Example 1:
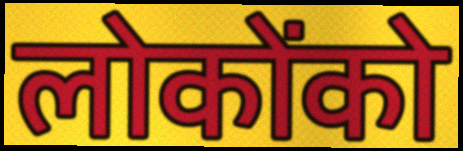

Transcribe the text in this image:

लोकोंको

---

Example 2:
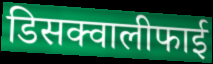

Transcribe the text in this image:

डिसक्वालीफाई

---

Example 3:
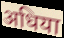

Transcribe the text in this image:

अधिया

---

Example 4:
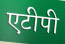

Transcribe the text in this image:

एटीपी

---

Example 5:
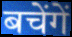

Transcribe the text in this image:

बचेंगें